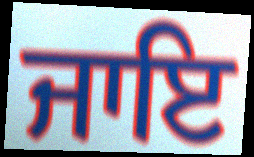
ਜਾਇ